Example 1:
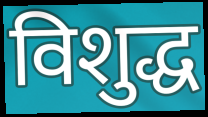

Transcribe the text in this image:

विशुद्ध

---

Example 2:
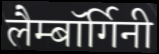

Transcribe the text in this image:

लैम्बॉर्गिनी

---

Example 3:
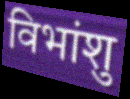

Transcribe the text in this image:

विभांशु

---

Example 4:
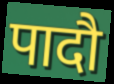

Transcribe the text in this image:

पादौ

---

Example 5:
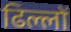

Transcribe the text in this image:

ढिल्लों